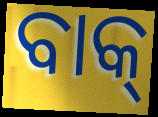
ବାକ୍